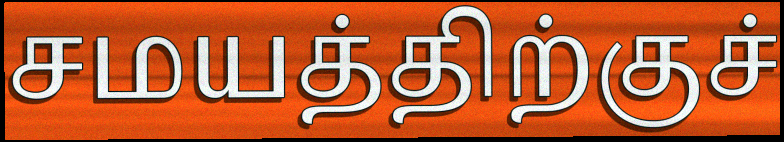
சமயத்திற்குச்